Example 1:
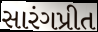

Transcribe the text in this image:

સારંગપ્રીત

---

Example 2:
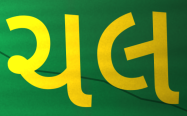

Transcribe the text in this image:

ચલ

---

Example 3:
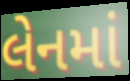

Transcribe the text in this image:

લેનમાં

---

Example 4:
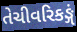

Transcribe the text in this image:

તેચીવરિકઙ્ગં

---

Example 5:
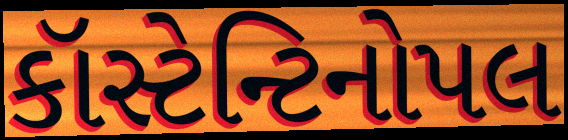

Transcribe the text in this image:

કૉસ્ટેન્ટિનોપલ